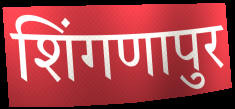
शिंगणापुर